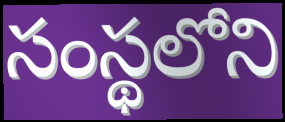
సంస్థలోని